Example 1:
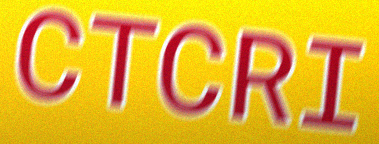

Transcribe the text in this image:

CTCRI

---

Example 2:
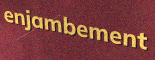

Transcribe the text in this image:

enjambement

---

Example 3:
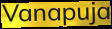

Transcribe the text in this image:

Vanapuja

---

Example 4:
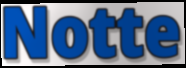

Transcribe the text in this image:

Notte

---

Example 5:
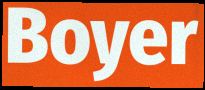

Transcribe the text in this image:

Boyer